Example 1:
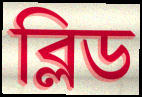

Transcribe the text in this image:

ব্লিড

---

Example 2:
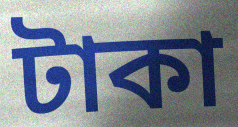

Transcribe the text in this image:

টাকা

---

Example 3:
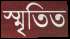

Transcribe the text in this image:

স্মৃতিত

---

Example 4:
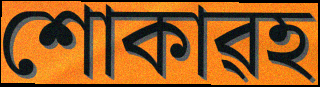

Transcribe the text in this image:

শোকাৱহ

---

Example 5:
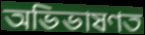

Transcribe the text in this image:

অভিভাষণত